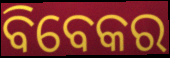
ବିବେକର